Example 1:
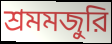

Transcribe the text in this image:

শ্রমমজুরি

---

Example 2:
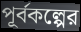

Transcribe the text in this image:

পূর্বকল্পের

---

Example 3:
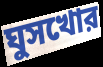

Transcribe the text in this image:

ঘুসখোর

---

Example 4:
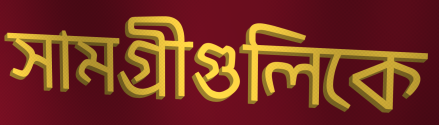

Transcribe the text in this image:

সামগ্রীগুলিকে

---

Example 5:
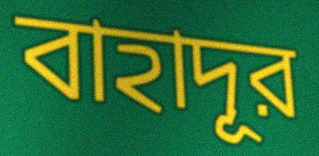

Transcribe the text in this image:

বাহাদূর